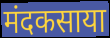
मंदकसाया